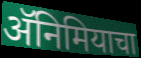
ॲनिमियाचा